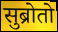
सुब्रोतो